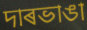
দাৰভাঙা